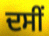
ਦਸੀਂ